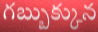
గబ్బుక్కున